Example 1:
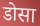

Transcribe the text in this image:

डोसा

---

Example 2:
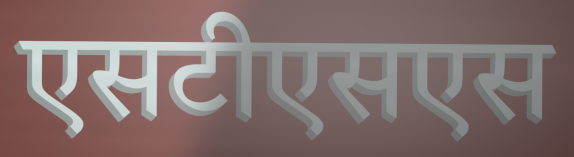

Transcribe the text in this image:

एसटीएसएस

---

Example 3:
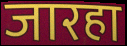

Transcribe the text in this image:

जारहा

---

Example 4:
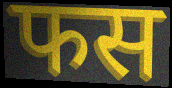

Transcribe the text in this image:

फस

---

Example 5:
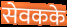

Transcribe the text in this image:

सेवकके